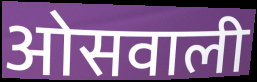
ओसवाली